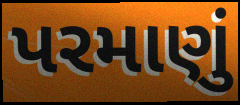
પરમાણું